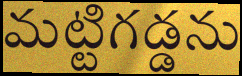
మట్టిగడ్డను